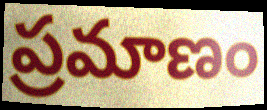
ప్రమాణం